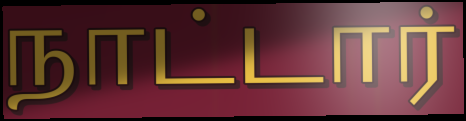
நாட்டார்